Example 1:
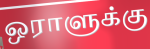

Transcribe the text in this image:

ஒராளுக்கு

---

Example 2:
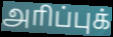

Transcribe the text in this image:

அரிப்புக்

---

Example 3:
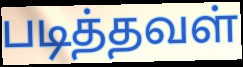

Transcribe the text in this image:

படித்தவள்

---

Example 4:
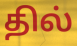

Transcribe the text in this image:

தில்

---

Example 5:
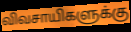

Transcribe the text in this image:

விவசாயிகளுக்கு